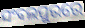
ସଂବଲପୁରରେ